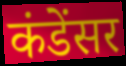
कंडेंसर